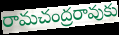
రామచంద్రరావుకు